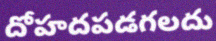
దోహదపడగలదు